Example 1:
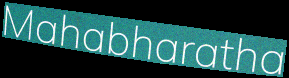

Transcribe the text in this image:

Mahabharatha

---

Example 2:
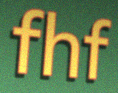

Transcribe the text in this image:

fhf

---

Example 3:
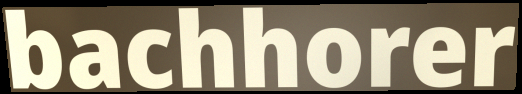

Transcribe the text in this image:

bachhorer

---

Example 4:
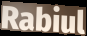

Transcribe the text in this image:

Rabiul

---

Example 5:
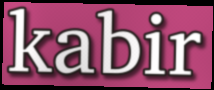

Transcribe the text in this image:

kabir